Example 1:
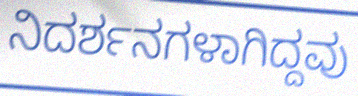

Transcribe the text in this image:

ನಿದರ್ಶನಗಳಾಗಿದ್ದವು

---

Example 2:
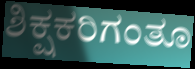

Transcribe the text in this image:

ಶಿಕ್ಷಕರಿಗಂತೂ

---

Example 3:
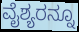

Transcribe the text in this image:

ವೈಶ್ಯರನ್ನೂ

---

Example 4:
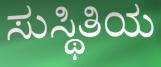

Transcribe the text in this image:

ಸುಸ್ಥಿತಿಯ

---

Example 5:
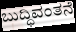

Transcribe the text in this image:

ಬುದ್ಧಿವಂತನೆ